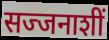
सज्जनाशीं